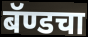
बॅण्डचा